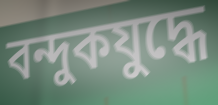
বন্দুকযুদ্ধে